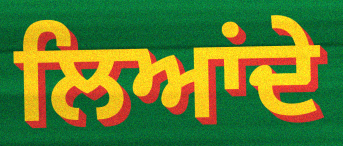
ਲਿਆਂਦੇ